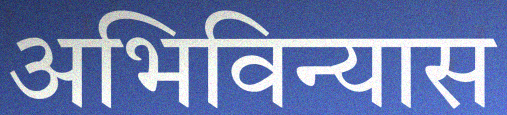
अभिविन्यास